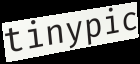
tinypic